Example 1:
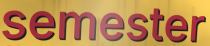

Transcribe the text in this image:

semester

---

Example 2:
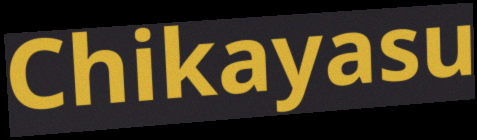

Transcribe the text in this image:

Chikayasu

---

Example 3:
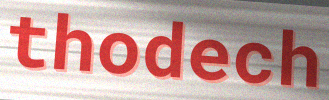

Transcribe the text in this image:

thodech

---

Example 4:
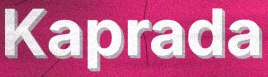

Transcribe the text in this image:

Kaprada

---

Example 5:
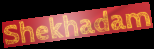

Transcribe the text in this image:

Shekhadam